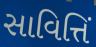
સાવિત્તિં